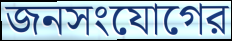
জনসংযোগের